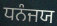
ਧਨੰਜਯ